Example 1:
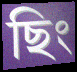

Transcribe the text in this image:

ছিং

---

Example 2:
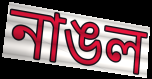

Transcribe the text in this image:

নাঙল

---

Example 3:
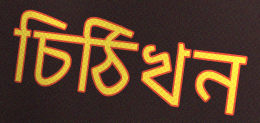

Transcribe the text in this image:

চিঠিখন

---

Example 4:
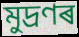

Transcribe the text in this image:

মুদ্ৰণৰ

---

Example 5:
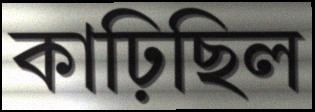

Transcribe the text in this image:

কাঢ়িছিল